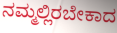
ನಮ್ಮಲ್ಲಿರಬೇಕಾದ